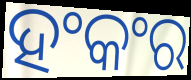
ହଂକଂର